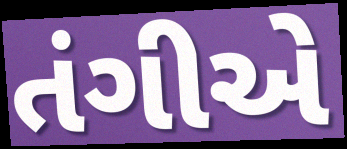
તંગીએ